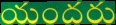
యందరు